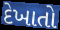
દેખાતો